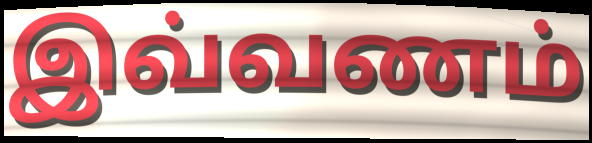
இவ்வணம்